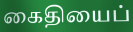
கைதியைப்